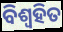
ବିଶ୍ଵହିତ